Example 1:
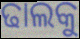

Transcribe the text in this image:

ଢାଲକୁ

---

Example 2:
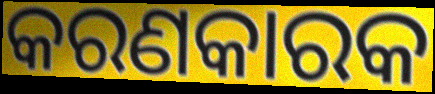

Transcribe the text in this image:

କରଣକାରକ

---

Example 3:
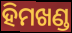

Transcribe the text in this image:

ହିମଖଣ୍ଡ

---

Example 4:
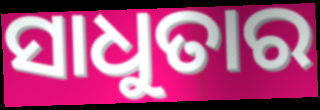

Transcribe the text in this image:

ସାଧୁତାର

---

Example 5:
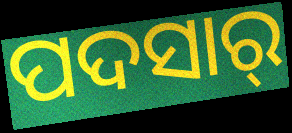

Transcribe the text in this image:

ପଦସାର୍